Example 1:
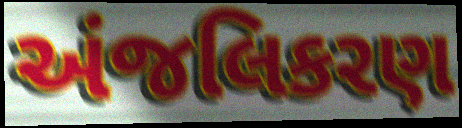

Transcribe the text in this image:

અંજલિકરણ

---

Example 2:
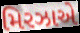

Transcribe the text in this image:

મિરઝાએ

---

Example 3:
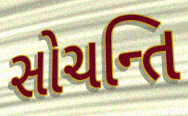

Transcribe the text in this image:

સોચન્તિ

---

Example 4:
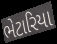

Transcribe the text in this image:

ભેટારિયા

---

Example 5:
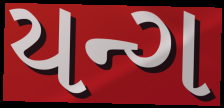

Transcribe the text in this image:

યન્ગ